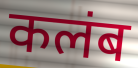
कलंब